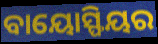
ବାୟୋସ୍ଫିୟର